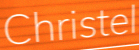
Christel